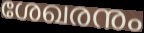
ശേഖരനും